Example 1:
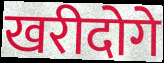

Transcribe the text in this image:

खरीदोगे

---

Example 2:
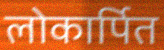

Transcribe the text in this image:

लोकार्पित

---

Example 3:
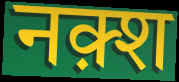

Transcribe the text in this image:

नक़्श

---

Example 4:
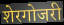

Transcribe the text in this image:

शेरगोजरी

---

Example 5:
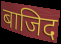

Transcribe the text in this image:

बाजिद